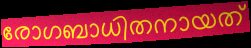
രോഗബാധിതനായത്